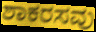
ಶಾಕರಸವು